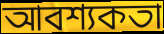
আবশ্যকতা